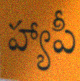
హ్యాపీ